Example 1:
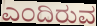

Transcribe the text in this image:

ಎಂದಿರುವ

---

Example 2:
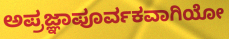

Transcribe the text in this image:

ಅಪ್ರಜ್ಞಾಪೂರ್ವಕವಾಗಿಯೋ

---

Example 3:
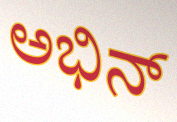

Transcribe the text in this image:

ಅಭಿನ್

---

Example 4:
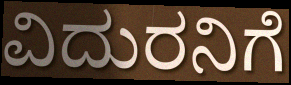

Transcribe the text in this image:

ವಿದುರನಿಗೆ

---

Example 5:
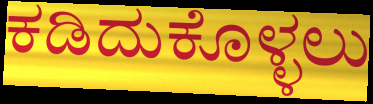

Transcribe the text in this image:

ಕಡಿದುಕೊಳ್ಳಲು